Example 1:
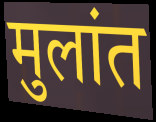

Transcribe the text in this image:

मुलांत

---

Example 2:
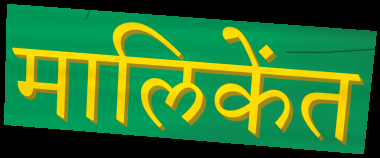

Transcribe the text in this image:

मालिकेंत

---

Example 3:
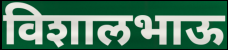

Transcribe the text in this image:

विशालभाऊ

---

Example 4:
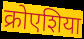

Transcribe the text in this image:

क्रोएशिया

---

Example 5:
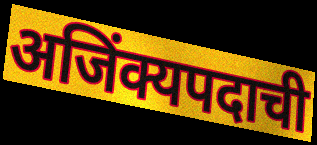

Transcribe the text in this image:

अजिंक्यपदाची